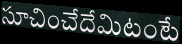
సూచించేదేమిటంటే